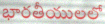
భారతీయులలో